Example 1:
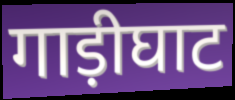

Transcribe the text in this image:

गाड़ीघाट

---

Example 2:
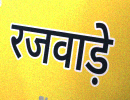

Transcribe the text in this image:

रजवाड़े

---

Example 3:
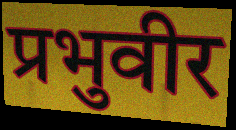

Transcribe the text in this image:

प्रभुवीर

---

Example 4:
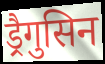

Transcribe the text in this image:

ड्रैगुसिन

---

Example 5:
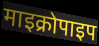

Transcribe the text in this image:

माइक्रोपाइप